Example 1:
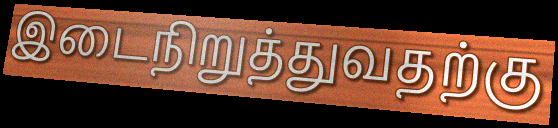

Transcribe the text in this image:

இடைநிறுத்துவதற்கு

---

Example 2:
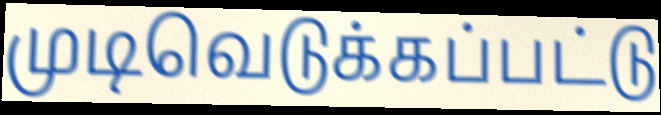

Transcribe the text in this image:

முடிவெடுக்கப்பட்டு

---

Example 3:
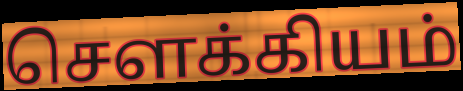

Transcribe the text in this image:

சௌக்கியம்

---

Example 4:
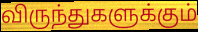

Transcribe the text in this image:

விருந்துகளுக்கும்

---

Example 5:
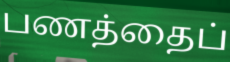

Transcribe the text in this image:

பணத்தைப்